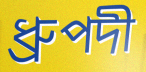
ধ্ৰুপদী